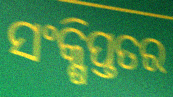
ସଂକ୍ଷିପ୍ତତର